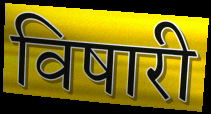
विषारी